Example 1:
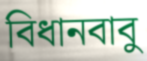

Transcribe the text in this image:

বিধানবাবু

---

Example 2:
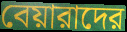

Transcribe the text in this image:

বেয়ারাদের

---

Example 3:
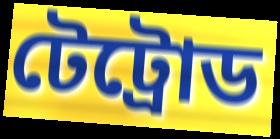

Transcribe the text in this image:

টেট্রোড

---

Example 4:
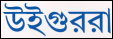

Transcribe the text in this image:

উইগুররা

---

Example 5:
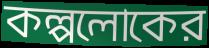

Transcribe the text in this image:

কল্পলোকের